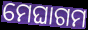
ମେଘାଗମ